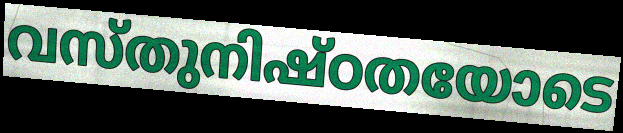
വസ്തുനിഷ്ഠതയോടെ